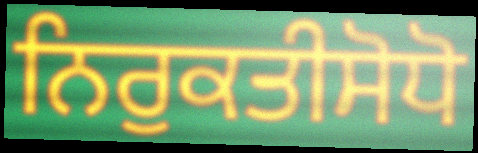
ਨਿਰੁਕਤੀਸੋਧੋ